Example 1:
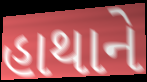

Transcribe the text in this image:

હાથાને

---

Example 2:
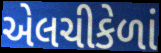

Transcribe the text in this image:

એલચીકેળાં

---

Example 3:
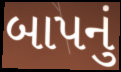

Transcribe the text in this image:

બાપનું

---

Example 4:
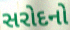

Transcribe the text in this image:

સરોદનો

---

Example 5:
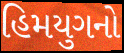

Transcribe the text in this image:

હિમયુગનો